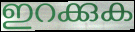
ഇറക്കുക